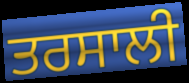
ਤਰਸਾਲੀ